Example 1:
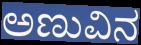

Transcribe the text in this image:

ಅಣುವಿನ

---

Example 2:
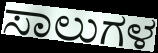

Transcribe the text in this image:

ಸಾಲುಗಳ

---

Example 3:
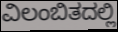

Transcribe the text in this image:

ವಿಲಂಬಿತದಲ್ಲಿ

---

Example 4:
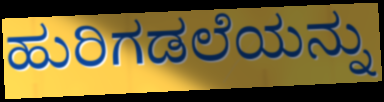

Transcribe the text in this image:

ಹುರಿಗಡಲೆಯನ್ನು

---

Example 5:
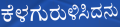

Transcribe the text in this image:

ಕೆಳಗುರುಳಿಸಿದನು